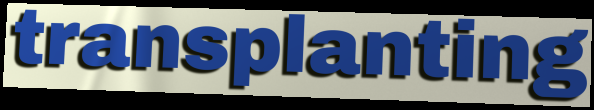
transplanting